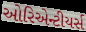
ઓરિએન્ટીયર્સ